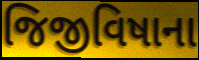
જિજીવિષાના